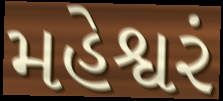
મહેશ્વરં